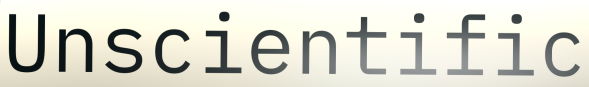
Unscientific